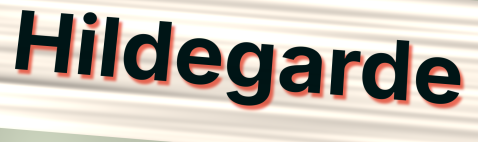
Hildegarde